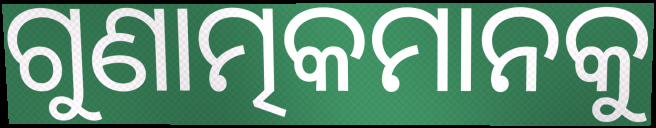
ଗୁଣାତ୍ମକମାନକୁ